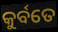
କୁର୍ବତେ